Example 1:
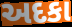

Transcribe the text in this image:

અદકા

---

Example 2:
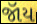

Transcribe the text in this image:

જૉય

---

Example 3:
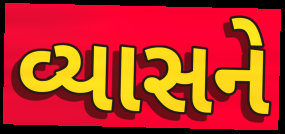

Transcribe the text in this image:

વ્યાસને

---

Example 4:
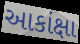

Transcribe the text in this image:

આકાંક્ષા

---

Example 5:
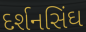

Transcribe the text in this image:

દર્શનસિંઘ